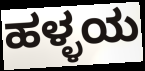
ಹಳ್ಳಯ